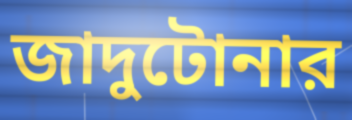
জাদুটোনার